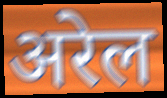
अरेल